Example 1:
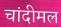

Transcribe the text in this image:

चांदीमल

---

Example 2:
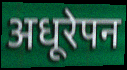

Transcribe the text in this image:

अधूरेपन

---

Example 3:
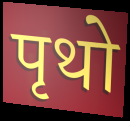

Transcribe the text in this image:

पृथो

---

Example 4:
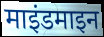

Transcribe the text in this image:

माइंडमाइन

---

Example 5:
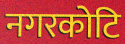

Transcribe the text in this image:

नगरकोटि